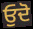
ਓੁਦੋ